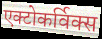
एक्टोकर्विक्स